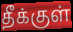
தீக்குள்